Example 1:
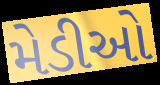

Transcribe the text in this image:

મેડીઓ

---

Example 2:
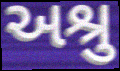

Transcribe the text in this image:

અશ્રુ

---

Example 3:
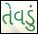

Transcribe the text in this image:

તેવડું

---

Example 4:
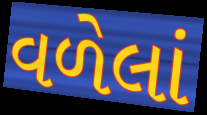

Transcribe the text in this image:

વળેલાં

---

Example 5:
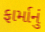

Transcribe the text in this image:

ફાર્માનું